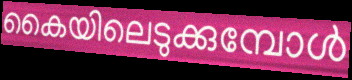
കൈയിലെടുക്കുമ്പോൾ